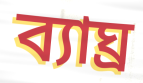
ব্যাঘ্র